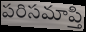
పరిసమాప్తి